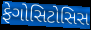
ફેગોસિટોસિસ